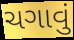
ચગાવું